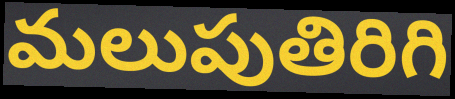
మలుపుతిరిగి